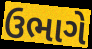
ઉભાગે